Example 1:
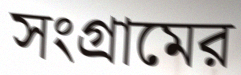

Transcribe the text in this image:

সংগ্রামের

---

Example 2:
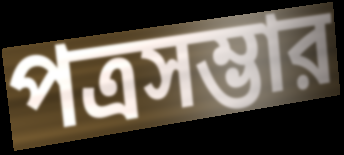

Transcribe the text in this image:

পত্রসম্ভার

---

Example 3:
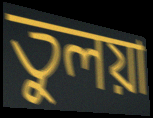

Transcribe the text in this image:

তুলয়া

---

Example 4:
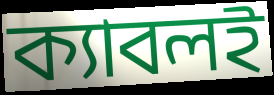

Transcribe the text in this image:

ক্যাবলই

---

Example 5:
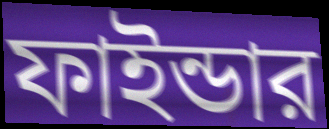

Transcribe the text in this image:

ফাইন্ডার